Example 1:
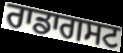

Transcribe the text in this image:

ਰਾਡਾਗਸਟ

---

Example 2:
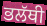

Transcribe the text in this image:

ਭਲੱਥੀ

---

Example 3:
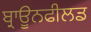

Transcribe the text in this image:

ਬ੍ਰਾਊਨਫੀਲਡ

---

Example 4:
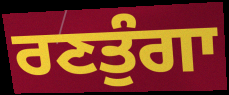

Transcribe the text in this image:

ਰਣਤੁੰਗਾ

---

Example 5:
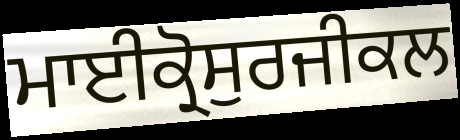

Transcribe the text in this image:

ਮਾਈਕ੍ਰੋਸੁਰਜੀਕਲ